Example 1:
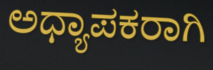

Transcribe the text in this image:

ಅಧ್ಯಾಪಕರಾಗಿ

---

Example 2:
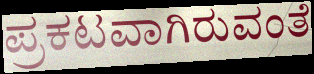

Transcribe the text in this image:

ಪ್ರಕಟವಾಗಿರುವಂತೆ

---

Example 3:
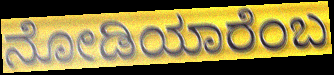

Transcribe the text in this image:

ನೋಡಿಯಾರೆಂಬ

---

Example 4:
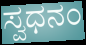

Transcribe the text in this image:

ಸ್ವಧನಂ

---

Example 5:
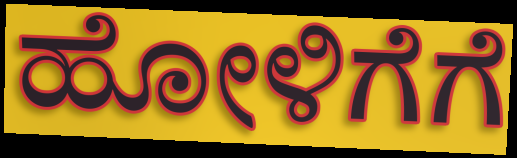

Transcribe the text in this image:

ಹೋಳಿಗೆಗೆ